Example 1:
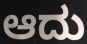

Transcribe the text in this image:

ಆದು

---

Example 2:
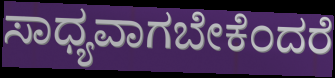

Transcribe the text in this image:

ಸಾಧ್ಯವಾಗಬೇಕೆಂದರೆ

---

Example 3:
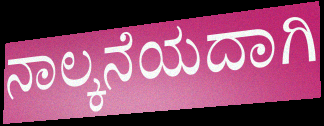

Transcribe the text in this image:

ನಾಲ್ಕನೆಯದಾಗಿ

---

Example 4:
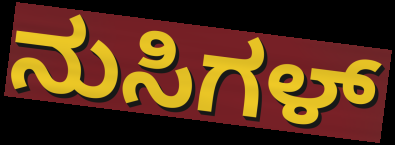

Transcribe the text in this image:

ನುಸಿಗಳ್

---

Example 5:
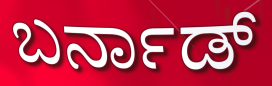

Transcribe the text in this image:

ಬರ್ನಾಡ್